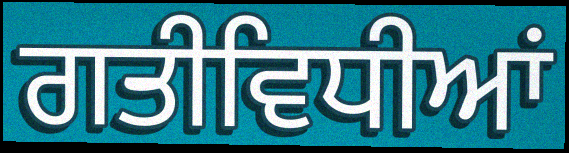
ਗਤੀਵਿਧੀਆਂ